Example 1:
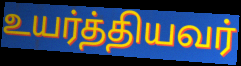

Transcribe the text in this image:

உயர்த்தியவர்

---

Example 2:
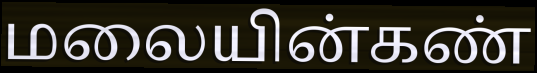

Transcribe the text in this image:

மலையின்கண்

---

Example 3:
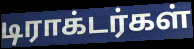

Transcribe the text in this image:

டிராக்டர்கள்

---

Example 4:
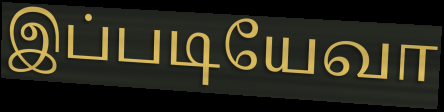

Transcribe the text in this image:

இப்படியேவா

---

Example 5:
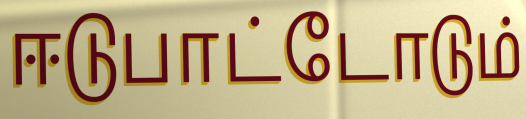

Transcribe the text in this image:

ஈடுபாட்டோடும்